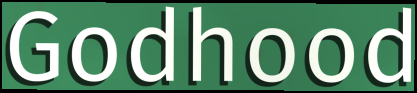
Godhood